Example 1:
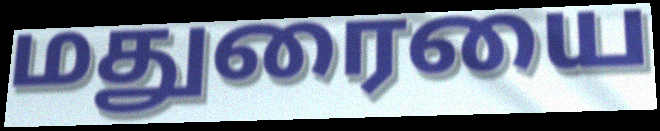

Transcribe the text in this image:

மதுரையை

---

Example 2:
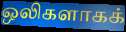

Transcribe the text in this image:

ஒலிகளாகக்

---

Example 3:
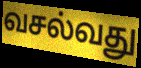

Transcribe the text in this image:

வசல்வது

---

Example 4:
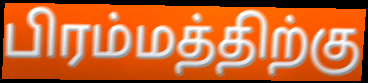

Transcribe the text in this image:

பிரம்மத்திற்கு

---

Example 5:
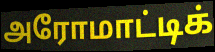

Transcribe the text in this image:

அரோமாட்டிக்